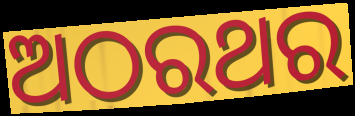
ଅଠରଥର